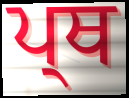
ਪ੍ਥ